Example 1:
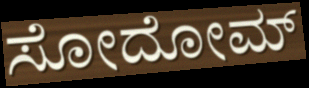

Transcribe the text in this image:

ಸೋದೋಮ್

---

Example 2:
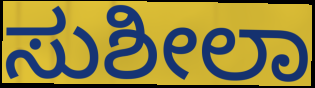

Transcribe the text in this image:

ಸುಶೀಲಾ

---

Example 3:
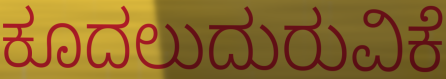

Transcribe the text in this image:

ಕೂದಲುದುರುವಿಕೆ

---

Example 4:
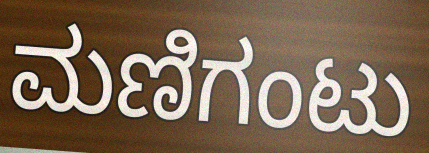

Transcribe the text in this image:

ಮಣಿಗಂಟು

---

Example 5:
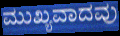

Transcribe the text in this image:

ಮುಖ್ಯವಾದವು